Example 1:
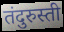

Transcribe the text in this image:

तंदुरुस्ती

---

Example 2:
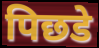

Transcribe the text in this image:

पिछडे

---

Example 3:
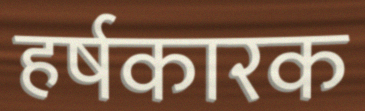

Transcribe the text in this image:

हर्षकारक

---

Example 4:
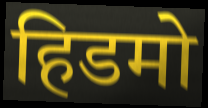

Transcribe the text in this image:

हिडमो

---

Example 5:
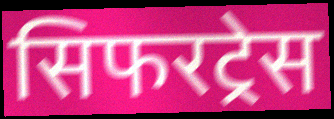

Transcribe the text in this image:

सिफरट्रेस